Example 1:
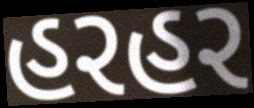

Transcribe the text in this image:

હરહર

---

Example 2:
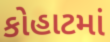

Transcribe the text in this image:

કોહાટમાં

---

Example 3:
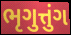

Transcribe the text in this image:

ભૃગુત્તુંગ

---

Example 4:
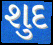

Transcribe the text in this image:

શુદ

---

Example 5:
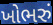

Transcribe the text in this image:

ખોભરું